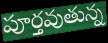
పూర్తవుతున్న